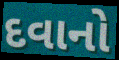
દવાનો